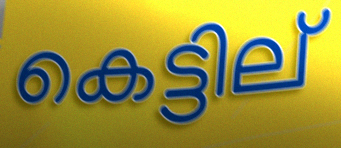
കെട്ടില്